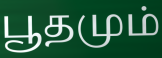
பூதமும்